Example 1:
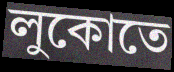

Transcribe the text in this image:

লুকোতে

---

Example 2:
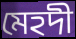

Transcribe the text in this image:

মেহদী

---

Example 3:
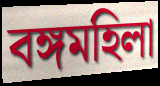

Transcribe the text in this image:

বঙ্গমহিলা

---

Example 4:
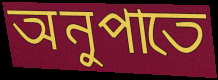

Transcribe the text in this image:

অনুপাতে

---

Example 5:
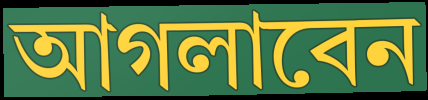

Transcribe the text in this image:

আগলাবেন